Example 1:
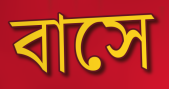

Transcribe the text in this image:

বাসে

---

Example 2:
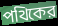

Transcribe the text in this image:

পথিকের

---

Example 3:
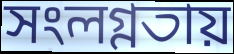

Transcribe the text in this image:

সংলগ্নতায়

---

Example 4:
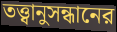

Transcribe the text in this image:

তত্ত্বানুসন্ধানের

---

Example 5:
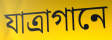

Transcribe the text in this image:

যাত্রাগানে